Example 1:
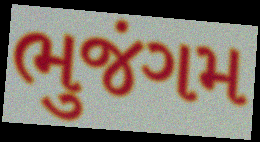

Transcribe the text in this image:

ભુજંગમ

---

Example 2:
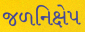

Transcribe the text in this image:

જળનિક્ષેપ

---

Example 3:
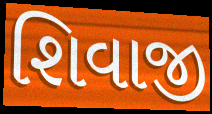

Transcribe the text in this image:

શિવાજી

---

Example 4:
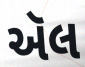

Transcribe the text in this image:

ઍલ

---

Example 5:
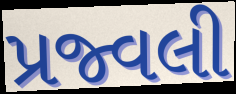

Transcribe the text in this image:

પ્રજ્વલી